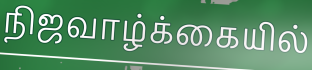
நிஜவாழ்க்கையில்